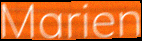
Marien